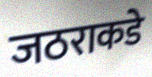
जठराकडे